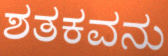
ಶತಕವನು